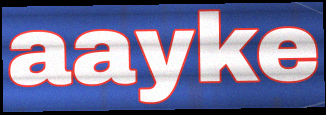
aayke